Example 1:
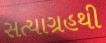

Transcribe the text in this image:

સત્યાગ્રહથી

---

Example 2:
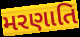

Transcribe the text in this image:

મરણાતિ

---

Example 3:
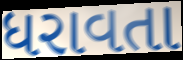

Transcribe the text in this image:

ધરાવતા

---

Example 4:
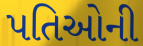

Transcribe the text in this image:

પતિઓની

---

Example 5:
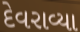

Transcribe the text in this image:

દેવરાવ્યા